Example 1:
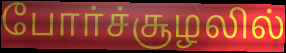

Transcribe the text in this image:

போர்ச்சூழலில்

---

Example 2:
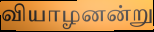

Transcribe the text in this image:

வியாழனன்று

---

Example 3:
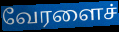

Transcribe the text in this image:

வேரளைச்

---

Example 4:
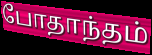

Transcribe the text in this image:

போதாந்தம்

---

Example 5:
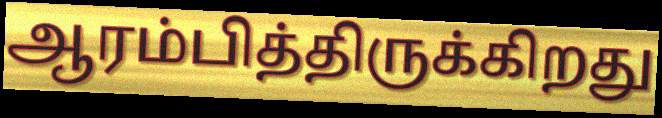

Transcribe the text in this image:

ஆரம்பித்திருக்கிறது